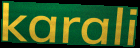
karali